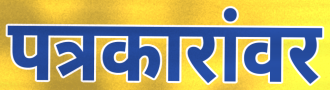
पत्रकारांवर